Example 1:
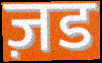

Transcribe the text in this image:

ज़ड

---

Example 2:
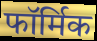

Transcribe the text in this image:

फॉर्मिक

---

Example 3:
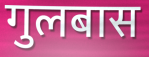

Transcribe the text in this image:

गुलबास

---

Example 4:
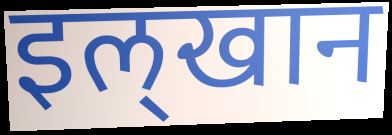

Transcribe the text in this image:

इल्खान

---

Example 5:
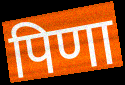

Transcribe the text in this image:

पिणा